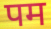
पम